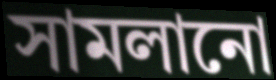
সামলানো